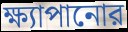
ক্ষ্যাপানোর